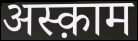
अस्क़ाम